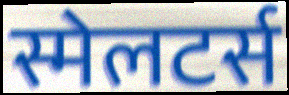
स्मेलटर्स